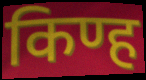
किण्ह